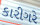
કારીગરે